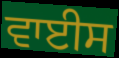
ਵਾਈਸ